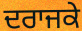
ਦਰਾਜਕੇ